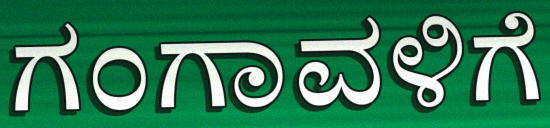
ಗಂಗಾವಳಿಗೆ